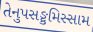
તેનુપસઙ્કમિસ્સામ